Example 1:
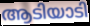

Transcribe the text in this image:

ആടിയാടി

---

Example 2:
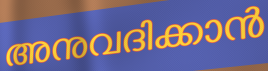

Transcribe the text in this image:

അനുവദിക്കാൻ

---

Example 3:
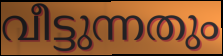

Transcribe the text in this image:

വീട്ടുന്നതും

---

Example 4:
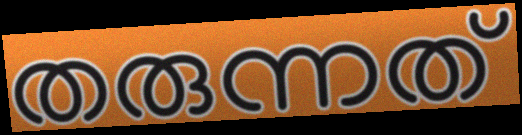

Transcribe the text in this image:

തരുന്നത്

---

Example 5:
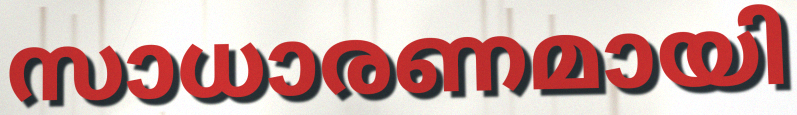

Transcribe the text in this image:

സാധാരണമായി